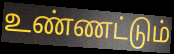
உண்ணட்டும்